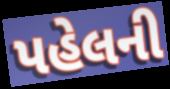
પહેલની